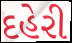
દહેરી